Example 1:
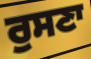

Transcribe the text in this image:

ਰੁਸਣਾ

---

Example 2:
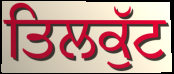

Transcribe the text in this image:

ਤਿਲਕੁੱਟ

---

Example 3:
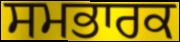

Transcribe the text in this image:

ਸਮਭਾਰਕ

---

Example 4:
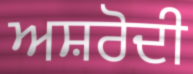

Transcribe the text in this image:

ਅਸ਼ਰੋਦੀ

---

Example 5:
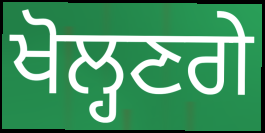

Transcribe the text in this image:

ਖੋਲ੍ਹਣਗੇ